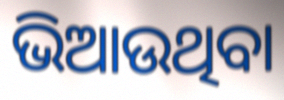
ଭିଆଉଥିବା